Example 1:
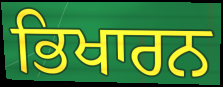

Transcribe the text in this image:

ਭਿਖਾਰਨ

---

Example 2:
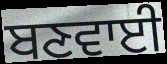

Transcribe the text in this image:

ਬਣਵਾਈ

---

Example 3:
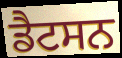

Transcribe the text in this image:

ਡੈਟਸਨ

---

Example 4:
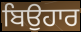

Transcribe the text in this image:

ਬਿਉਹਾਰ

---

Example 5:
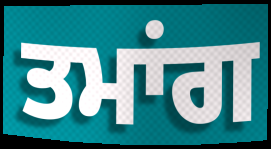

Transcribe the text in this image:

ਤਮਾਂਗ